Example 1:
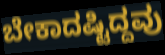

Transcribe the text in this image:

ಬೇಕಾದಷ್ಟಿದ್ದವು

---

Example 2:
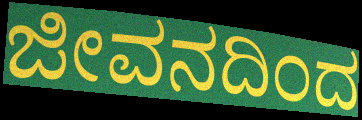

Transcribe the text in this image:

ಜೀವನದಿಂದ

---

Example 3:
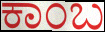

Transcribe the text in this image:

ಕಾಂಬ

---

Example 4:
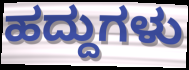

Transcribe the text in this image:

ಹದ್ದುಗಳು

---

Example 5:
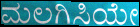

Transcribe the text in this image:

ಮಲಗಿಸಿಯೇ